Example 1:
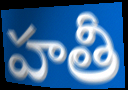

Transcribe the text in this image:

హతీ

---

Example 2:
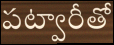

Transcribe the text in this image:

పట్వారీతో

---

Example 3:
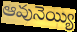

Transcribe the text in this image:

ఆవునెయ్యి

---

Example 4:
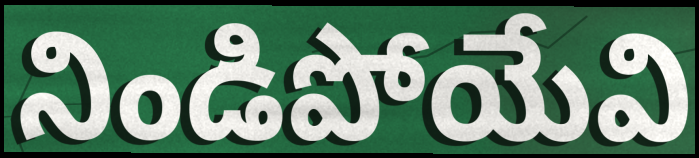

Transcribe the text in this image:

నిండిపోయేవి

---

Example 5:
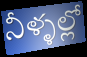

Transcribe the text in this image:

నీళ్ళల్లో